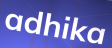
adhika